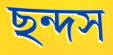
ছন্দস